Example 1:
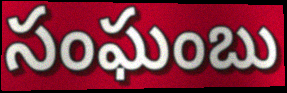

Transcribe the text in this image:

సంఘంబు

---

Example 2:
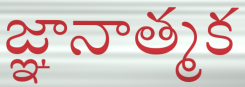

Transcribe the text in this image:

జ్ఞానాత్మక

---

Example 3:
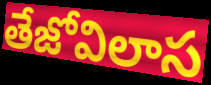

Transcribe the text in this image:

తేజోవిలాస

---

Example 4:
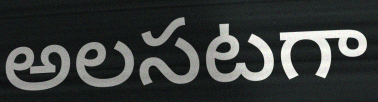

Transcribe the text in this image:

అలసటగా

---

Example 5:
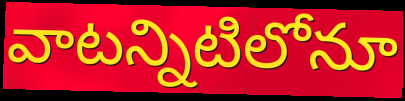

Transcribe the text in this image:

వాటన్నిటిలోనూ